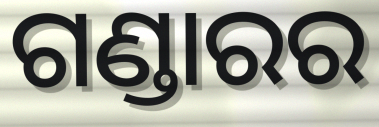
ଗଣ୍ଡାରର